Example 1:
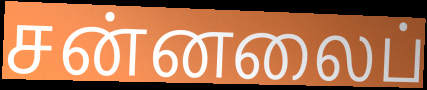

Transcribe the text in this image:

சன்னலைப்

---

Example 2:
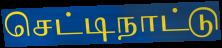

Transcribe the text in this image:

செட்டிநாட்டு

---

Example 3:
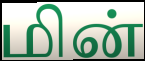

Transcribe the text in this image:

மின்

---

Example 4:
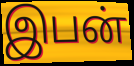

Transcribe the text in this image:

இபன்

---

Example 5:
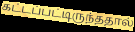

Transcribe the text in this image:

கட்டப்பட்டிருந்ததால்